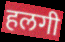
हलगी